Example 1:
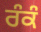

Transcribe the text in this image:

ਰੰਕੰ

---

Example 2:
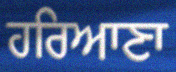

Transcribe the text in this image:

ਹਰਿਆਣਾ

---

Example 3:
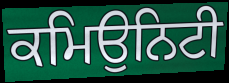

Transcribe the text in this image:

ਕਮਿਉਨਿਟੀ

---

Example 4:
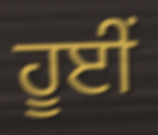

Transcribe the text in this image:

ਹੂਈਂ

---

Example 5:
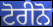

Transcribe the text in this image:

ਟੋਰੀਨੋ